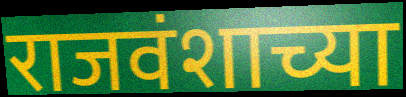
राजवंशाच्या